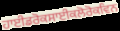
ਹਾਈਡਰੋਕਸਾਈਕਲੋਰੋਕਵਿਨ